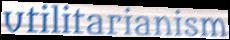
utilitarianism